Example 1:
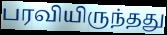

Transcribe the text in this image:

பரவியிருந்தது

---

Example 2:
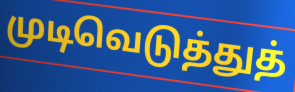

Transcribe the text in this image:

முடிவெடுத்துத்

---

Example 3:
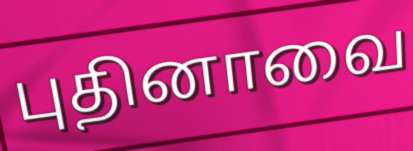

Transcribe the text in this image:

புதினாவை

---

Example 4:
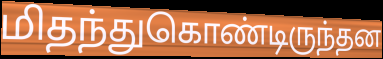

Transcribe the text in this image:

மிதந்துகொண்டிருந்தன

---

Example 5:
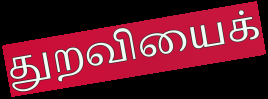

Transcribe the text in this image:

துறவியைக்